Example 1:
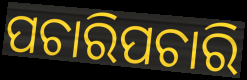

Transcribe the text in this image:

ପଚାରିପଚାରି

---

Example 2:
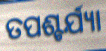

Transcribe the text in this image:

ତପଶ୍ଚର୍ଯ୍ୟା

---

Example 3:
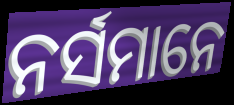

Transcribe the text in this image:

ନର୍ସମାନେ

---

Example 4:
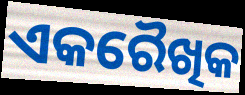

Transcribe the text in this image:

ଏକରୈଖିକ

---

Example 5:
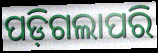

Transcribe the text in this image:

ପଡ଼ିଗଲାପରି